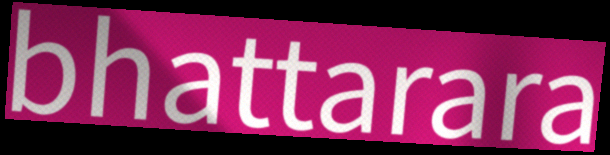
bhattarara